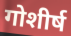
गोशीर्ष